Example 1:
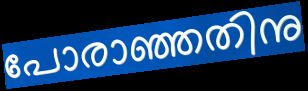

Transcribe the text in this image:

പോരാഞ്ഞതിനു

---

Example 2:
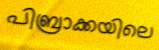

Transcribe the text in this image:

പിബ്രാക്കയിലെ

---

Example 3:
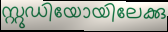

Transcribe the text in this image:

സ്റ്റുഡിയോയിലേക്കു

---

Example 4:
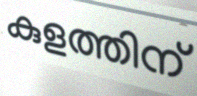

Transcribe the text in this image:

കുളത്തിന്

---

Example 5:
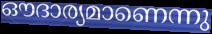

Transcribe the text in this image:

ഔദാര്യമാണെന്നു